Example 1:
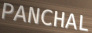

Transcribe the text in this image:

PANCHAL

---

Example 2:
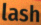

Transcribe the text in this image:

lash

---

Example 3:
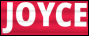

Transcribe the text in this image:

JOYCE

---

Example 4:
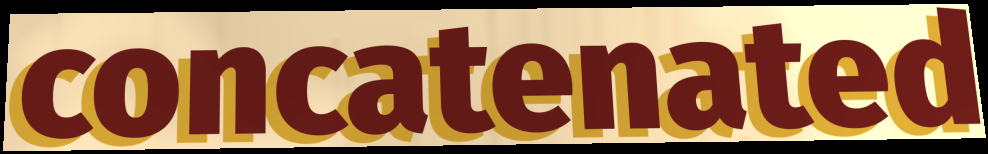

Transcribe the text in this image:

concatenated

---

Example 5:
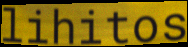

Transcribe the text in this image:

lihitos